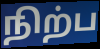
நிற்ப